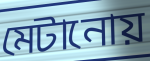
মেটানোয়